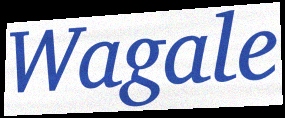
Wagale